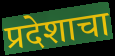
प्रदेशाचा